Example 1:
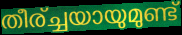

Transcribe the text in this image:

തീര്ച്ചയായുമുണ്ട്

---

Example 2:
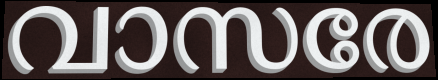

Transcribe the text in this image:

വാസരേ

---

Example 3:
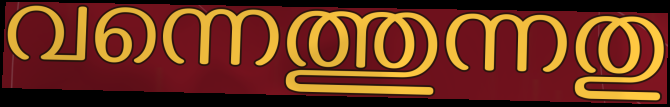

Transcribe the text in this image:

വന്നെത്തുന്നതു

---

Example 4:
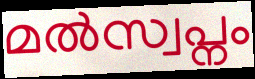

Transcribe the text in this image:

മൽസ്വപ്നം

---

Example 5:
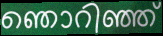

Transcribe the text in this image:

ഞൊറിഞ്ഞ്